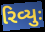
રિવ્યુઃ